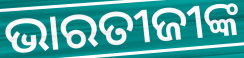
ଭାରତୀଜୀଙ୍କ